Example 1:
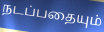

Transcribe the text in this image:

நடப்பதையும்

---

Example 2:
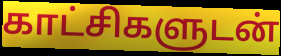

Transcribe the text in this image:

காட்சிகளுடன்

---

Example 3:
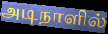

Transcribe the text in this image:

அடிநாளில்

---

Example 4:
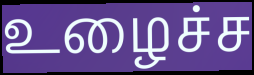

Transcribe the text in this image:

உழைச்ச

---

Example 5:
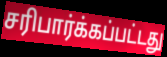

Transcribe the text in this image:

சரிபார்க்கப்பட்டது